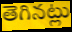
తెగినట్లు